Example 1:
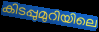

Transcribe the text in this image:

കിടപ്പുമുറിയിലെ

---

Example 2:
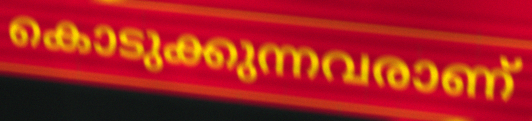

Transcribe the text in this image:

കൊടുക്കുന്നവരാണ്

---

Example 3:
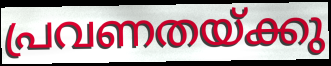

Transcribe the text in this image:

പ്രവണതയ്ക്കു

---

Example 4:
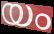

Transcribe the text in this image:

യം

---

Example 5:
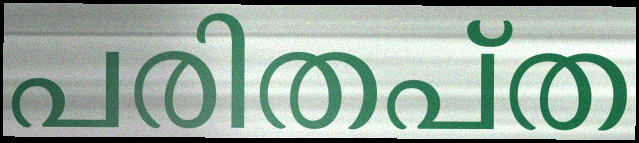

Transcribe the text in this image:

പരിതപ്ത